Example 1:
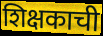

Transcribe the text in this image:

शिक्षकाची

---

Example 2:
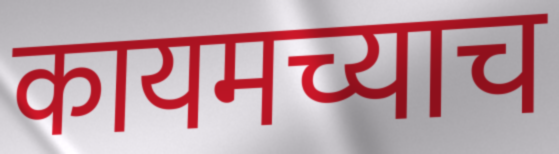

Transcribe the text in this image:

कायमच्याच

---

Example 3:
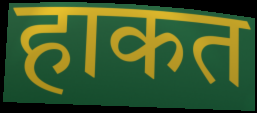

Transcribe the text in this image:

हाकत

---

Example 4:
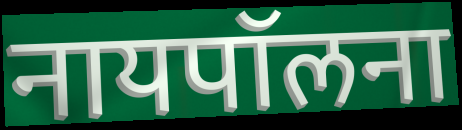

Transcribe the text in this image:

नायपॉलना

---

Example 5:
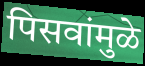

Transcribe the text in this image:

पिसवांमुळे